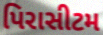
પિરાસીટમ